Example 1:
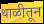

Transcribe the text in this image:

थाळीतून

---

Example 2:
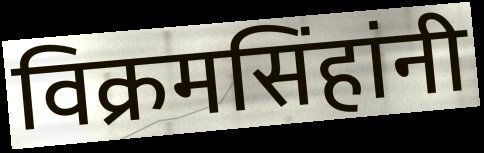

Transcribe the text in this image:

विक्रमसिंहांनी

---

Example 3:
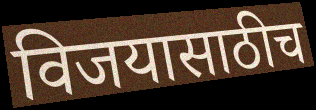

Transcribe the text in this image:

विजयासाठीच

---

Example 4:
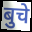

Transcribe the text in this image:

बुचे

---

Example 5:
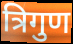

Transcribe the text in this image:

त्रिगुण